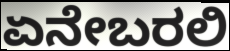
ಏನೇಬರಲಿ